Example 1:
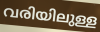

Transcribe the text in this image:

വരിയിലുള്ള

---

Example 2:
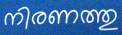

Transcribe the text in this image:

നിരണത്തു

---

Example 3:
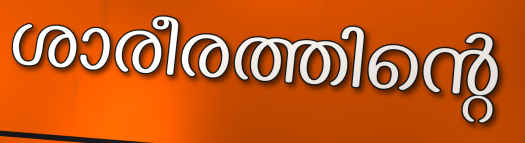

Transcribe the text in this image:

ശാരീരത്തിന്റെ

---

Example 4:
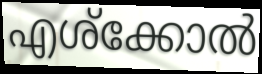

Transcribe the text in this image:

എശ്ക്കോൽ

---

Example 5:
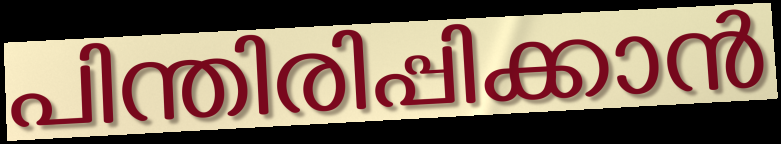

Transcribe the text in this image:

പിന്തിരിപ്പിക്കാൻ